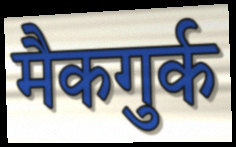
मैकगुर्क